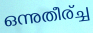
ഒന്നുതീര്ച്ച